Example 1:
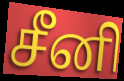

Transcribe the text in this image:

சீனி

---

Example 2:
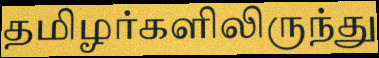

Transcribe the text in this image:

தமிழர்களிலிருந்து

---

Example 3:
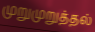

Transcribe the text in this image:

முறுமுறுத்தல்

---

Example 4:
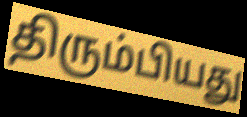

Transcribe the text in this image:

திரும்பியது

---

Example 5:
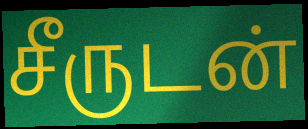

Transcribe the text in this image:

சீருடன்